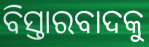
ବିସ୍ତାରବାଦକୁ